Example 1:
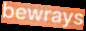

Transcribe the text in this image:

bewrays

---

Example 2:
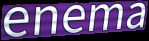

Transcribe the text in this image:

enema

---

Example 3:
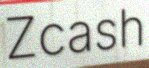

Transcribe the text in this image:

Zcash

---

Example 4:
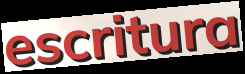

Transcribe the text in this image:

escritura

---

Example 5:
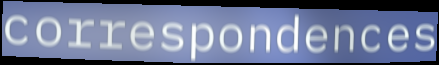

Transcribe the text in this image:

correspondences